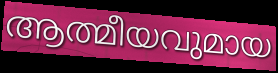
ആത്മീയവുമായ